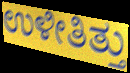
ಉಳೀತಿತ್ತು